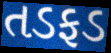
તડફડ